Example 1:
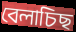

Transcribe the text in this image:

বেলাচিছ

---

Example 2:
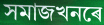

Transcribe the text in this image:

সমাজখনৰে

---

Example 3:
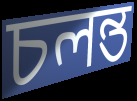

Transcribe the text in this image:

চলন্ত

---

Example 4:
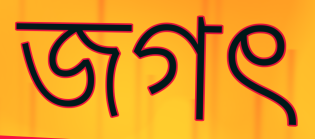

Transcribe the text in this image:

জগৎ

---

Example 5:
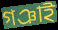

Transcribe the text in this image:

গঞাই